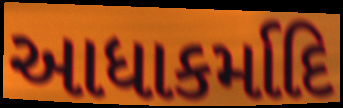
આધાકર્માદિ